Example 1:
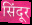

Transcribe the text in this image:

सिंदूर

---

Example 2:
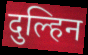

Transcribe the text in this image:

दुल्हिन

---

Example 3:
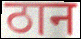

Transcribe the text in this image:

ठान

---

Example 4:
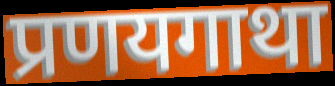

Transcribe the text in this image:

प्रणयगाथा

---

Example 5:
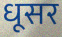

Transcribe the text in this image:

धूसर